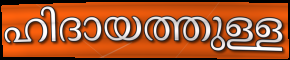
ഹിദായത്തുള്ള